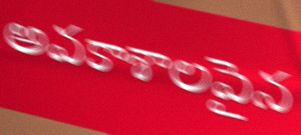
అవకాశాలపైన